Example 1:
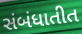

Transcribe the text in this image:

સંબંધાતીત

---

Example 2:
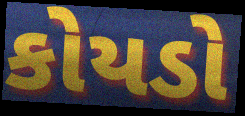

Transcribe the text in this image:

કોયડો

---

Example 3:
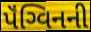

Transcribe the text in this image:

પૅંગ્વિનની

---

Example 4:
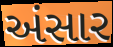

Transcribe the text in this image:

અંસાર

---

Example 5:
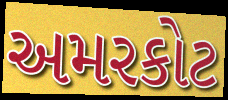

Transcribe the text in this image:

અમરકોટ